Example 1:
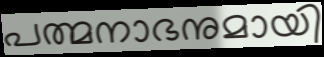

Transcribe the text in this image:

പത്മനാഭനുമായി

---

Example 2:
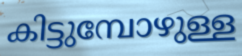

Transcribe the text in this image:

കിട്ടുമ്പോഴുള്ള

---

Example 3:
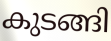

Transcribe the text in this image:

കുടങ്ങി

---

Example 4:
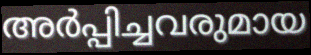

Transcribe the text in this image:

അർപ്പിച്ചവരുമായ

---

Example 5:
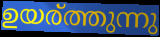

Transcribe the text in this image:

ഉയര്ത്തുന്നു